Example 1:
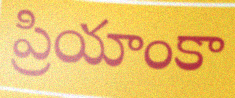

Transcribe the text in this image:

ప్రియాంకా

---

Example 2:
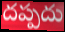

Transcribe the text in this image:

దప్పదు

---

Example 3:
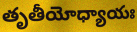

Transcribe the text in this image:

తృతీయోధ్యాయః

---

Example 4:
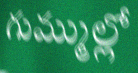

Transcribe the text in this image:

గుమ్ముల్లో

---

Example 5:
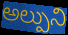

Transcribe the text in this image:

అల్పుని